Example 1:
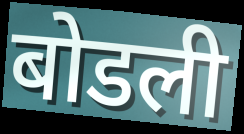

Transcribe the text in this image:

बोडली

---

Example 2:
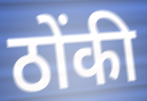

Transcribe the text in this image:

ठोंकी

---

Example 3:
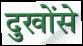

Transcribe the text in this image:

दुखोंसे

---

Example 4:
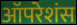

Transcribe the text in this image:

ऑपरेशंस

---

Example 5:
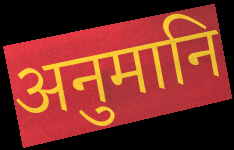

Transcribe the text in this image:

अनुमानि